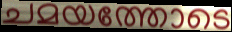
ചമയത്തോടെ